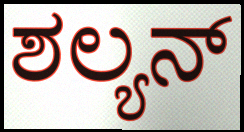
ಶಲ್ಯನ್